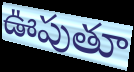
ఊపుతూ